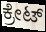
ಕ್ರೇಟ್